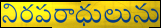
నిరపరాధులును